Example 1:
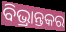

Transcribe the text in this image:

ବିଭ୍ରାନ୍ତକର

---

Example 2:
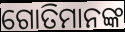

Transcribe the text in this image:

ଗୋତିମାନଙ୍କ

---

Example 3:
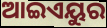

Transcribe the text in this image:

ଆଇଏୟୁର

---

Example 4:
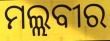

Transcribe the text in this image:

ମଲ୍ଲବୀର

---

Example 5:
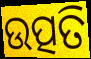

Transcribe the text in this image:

ଉତ୍ପତି